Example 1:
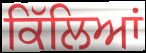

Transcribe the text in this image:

ਕਿੱਲਿਆਂ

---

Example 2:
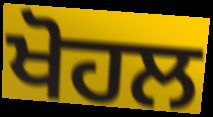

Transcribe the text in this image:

ਖੋਹਲ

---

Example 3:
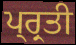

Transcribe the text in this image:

ਪ੍ਰ੍ਰਤੀ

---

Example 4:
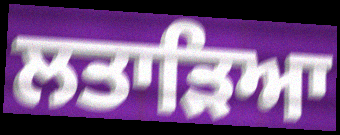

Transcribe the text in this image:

ਲਤਾੜਿਆ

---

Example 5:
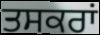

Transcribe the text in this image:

ਤਸਕਰਾਂ